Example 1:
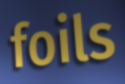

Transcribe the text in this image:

foils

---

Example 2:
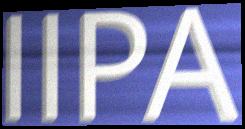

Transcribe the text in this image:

IIPA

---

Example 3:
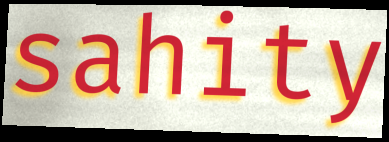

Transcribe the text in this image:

sahity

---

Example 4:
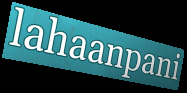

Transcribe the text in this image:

lahaanpani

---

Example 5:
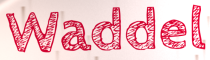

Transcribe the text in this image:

Waddel